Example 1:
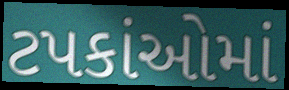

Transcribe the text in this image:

ટપકાંઓમાં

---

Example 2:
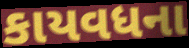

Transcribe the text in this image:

કાયવધના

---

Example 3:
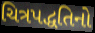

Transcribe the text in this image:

ચિત્રપદ્ધતિનો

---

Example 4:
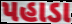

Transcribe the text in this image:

પહાડા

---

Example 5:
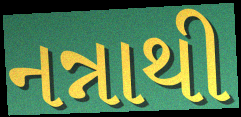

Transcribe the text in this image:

નન્નાથી